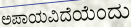
ಅಪಾಯವಿದೆಯೆಂದು